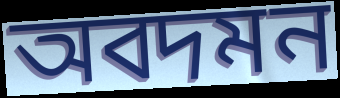
অবদমন